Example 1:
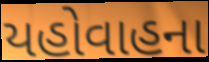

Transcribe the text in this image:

યહોવાહના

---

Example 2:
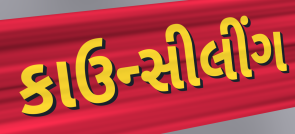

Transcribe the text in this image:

કાઉન્સીલીંગ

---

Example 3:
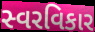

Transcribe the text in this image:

સ્વરવિકાર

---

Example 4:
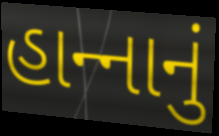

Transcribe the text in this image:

હાન્‍નાનું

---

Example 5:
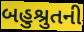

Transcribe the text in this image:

બહુશ્રુતની